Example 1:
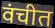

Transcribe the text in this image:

वंचीत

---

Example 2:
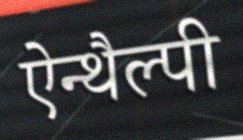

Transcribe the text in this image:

ऐन्थैल्पी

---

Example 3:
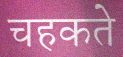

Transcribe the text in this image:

चहकते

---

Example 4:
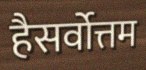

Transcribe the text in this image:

हैसर्वोत्तम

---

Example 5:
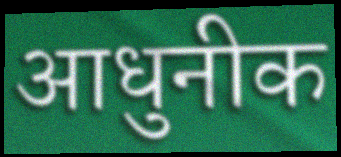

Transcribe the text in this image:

आधुनीक